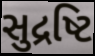
સુદ્રષ્ટિ